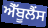
ਐੱਬੂਲੈਂਸ